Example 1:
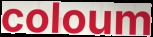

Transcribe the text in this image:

coloum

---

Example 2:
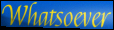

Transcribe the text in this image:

Whatsoever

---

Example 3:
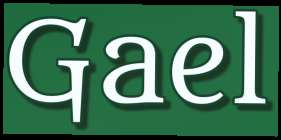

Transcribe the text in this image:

Gael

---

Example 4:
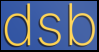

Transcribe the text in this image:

dsb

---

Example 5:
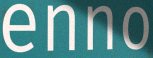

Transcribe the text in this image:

enno